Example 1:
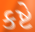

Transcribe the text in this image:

કષ્ટે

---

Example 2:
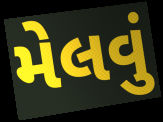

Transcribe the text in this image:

મેલવું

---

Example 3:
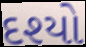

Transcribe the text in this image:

દશ્યો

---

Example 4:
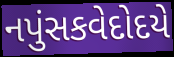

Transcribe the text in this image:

નપુંસકવેદોદયે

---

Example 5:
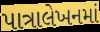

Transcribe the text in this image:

પાત્રાલેખનમાં